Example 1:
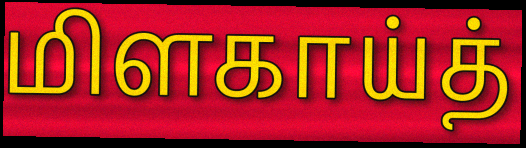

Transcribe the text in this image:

மிளகாய்த்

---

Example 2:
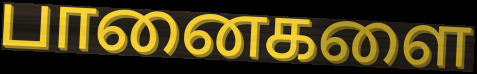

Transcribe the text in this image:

பானைகளை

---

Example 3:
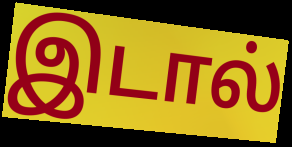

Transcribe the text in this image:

இடால்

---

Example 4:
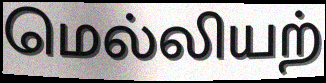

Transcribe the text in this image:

மெல்லியற்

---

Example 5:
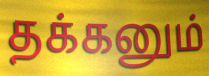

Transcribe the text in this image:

தக்கனும்